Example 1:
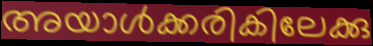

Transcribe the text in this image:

അയാൾക്കരികിലേക്കു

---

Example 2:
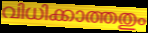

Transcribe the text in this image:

വിധിക്കാത്തതും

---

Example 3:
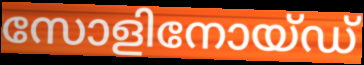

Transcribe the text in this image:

സോളിനോയ്ഡ്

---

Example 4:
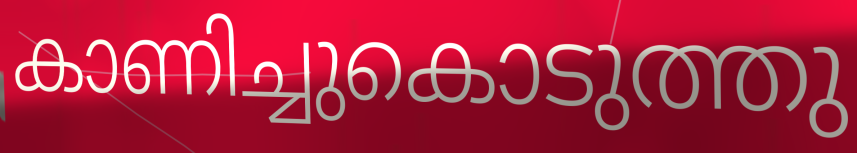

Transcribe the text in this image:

കാണിച്ചുകൊടുത്തു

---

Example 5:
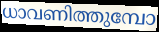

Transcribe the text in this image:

ധാവണിത്തുമ്പോ